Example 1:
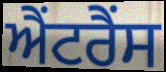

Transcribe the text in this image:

ਐਂਟਰੈਂਸ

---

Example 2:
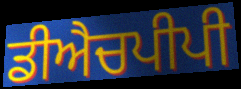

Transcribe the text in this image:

ਡੀਐਚਪੀਪੀ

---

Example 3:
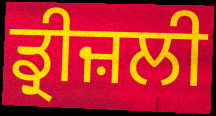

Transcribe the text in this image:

ਡ੍ਰੀਜ਼ਲੀ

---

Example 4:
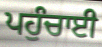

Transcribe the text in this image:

ਪਹੁੰਚਾਈ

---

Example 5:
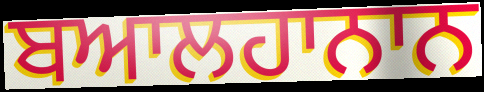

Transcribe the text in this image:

ਬਆਲਹਾਨਾਨ